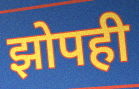
झोपही